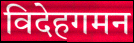
विदेहगमन